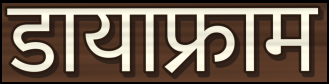
डायाफ्राम